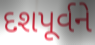
દશપૂર્વને